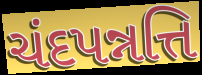
ચંદપન્નત્તિ